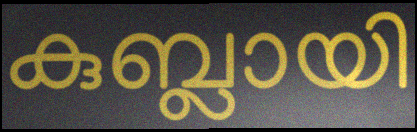
കുബ്ലായി